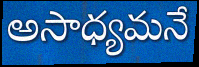
అసాధ్యమనే